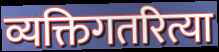
व्यक्तिगतरित्या